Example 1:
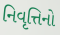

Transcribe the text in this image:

નિવૃત્તિનો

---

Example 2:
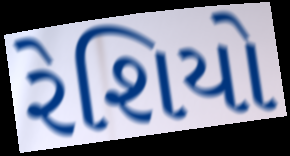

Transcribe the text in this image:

રેશિયો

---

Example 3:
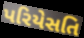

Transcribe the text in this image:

પરિયેસતિ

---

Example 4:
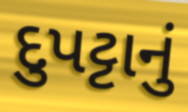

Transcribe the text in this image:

દુપટ્ટાનું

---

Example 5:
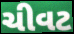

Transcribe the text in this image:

ચીવટ